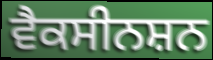
ਵੈਕਸੀਨਸ਼ਨ